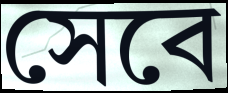
সেবে